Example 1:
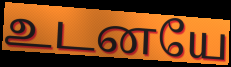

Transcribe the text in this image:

உடனயே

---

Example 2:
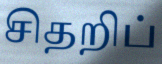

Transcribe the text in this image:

சிதறிப்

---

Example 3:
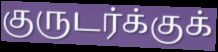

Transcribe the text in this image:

குருடர்க்குக்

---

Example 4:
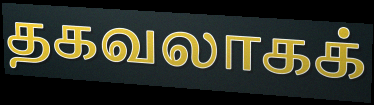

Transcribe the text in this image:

தகவலாகக்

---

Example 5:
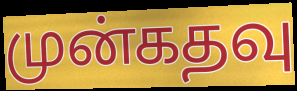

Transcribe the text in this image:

முன்கதவு